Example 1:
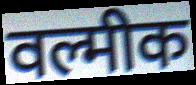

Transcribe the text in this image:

वल्मीक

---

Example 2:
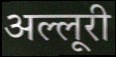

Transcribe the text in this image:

अल्लूरी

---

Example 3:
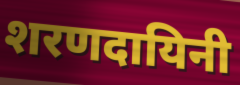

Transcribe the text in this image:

शरणदायिनी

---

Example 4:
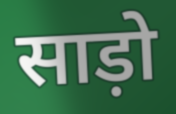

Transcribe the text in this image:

साड़ो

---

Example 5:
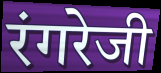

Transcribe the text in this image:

रंगरेजी